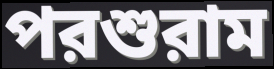
পরশুরাম